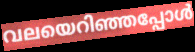
വലയെറിഞ്ഞപ്പോൾ